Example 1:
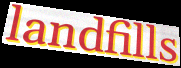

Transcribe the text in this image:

landfills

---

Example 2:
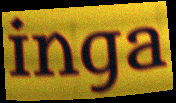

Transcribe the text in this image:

inga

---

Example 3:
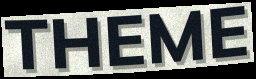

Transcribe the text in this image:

THEME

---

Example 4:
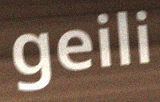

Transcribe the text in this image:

geili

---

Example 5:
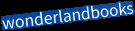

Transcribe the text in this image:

wonderlandbooks